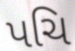
પચિ